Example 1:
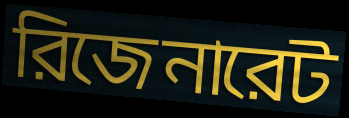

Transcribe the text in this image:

রিজেনারেট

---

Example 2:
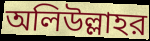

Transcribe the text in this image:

অলিউল্লাহর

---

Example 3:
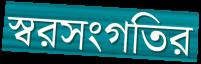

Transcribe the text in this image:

স্বরসংগতির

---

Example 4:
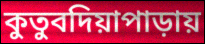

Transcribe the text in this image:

কুতুবদিয়াপাড়ায়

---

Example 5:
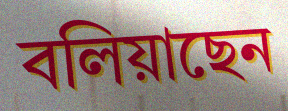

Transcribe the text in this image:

বলিয়াছেন